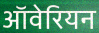
ऑवेरियन